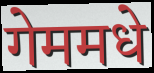
गेममधे